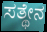
ಸತ್ಥೇನ